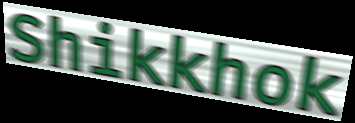
Shikkhok